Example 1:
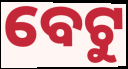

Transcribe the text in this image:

ବେଟୁ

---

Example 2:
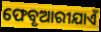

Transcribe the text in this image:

ଫେବୃଆରୀଯାଏଁ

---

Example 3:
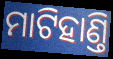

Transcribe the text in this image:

ମାଟିହାଣ୍ତି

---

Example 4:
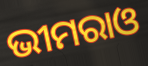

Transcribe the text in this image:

ଭୀମରାଓ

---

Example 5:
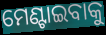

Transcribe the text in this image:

ମେଣ୍ଟାଇବାକୁ